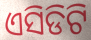
ଏସିଡିଟି